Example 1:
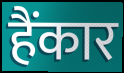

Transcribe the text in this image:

हैंकार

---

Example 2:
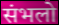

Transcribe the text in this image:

संभलो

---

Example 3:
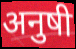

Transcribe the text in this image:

अनुषी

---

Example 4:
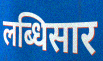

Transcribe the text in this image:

लब्धिसार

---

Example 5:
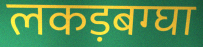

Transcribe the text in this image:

लकड़बग्घा